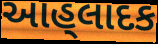
આહ્‌લાદક